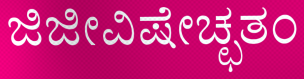
ಜಿಜೀವಿಷೇಚ್ಛತಂ